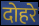
दोहरे